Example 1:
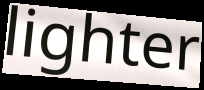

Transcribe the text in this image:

lighter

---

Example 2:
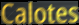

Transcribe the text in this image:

Calotes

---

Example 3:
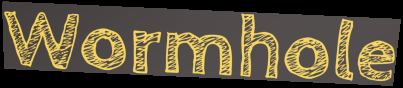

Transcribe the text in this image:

Wormhole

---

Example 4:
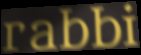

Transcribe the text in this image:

rabbi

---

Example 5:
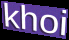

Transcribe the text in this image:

khoi